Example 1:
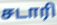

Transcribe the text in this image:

சடாரி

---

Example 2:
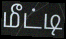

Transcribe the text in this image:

மீட்டி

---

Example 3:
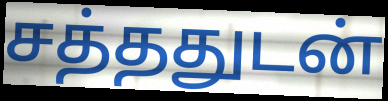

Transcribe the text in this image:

சத்ததுடன்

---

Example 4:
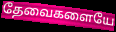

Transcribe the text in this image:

தேவைகளையே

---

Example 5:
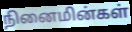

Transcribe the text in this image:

நினைமின்கள்